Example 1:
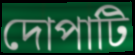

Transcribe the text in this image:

দোপাটি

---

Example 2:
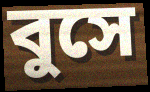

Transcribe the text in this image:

বুসে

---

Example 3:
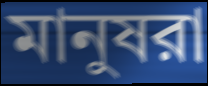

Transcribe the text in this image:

মানুষরা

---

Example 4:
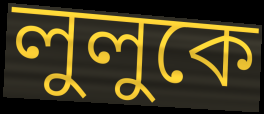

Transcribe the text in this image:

লুলুকে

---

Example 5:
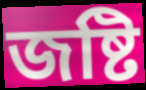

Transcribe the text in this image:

জষ্টি